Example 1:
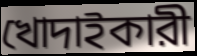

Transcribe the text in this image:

খোদাইকারী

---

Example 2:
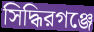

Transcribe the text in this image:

সিদ্ধিরগঞ্জে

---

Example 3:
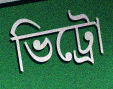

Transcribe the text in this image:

ভিট্রো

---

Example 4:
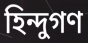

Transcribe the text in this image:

হিন্দুগণ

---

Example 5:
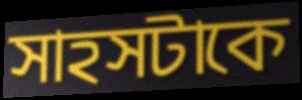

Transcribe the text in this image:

সাহসটাকে